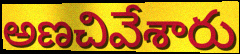
అణచివేశారు